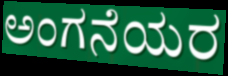
ಅಂಗನೆಯರ